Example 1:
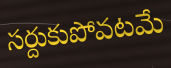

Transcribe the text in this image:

సర్దుకుపోవటమే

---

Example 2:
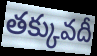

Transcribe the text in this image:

తక్కువదీ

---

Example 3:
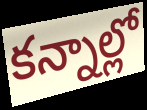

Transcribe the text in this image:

కన్నాల్లో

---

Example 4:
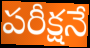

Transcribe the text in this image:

పరీక్షనే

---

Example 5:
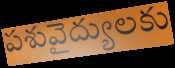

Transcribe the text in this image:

పశువైద్యులకు